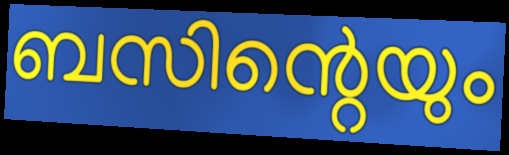
ബസിന്റെയും